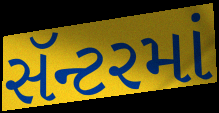
સૅન્ટરમાં